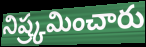
నిష్ర్కమించారు